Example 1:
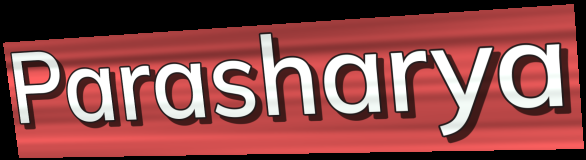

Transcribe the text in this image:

Parasharya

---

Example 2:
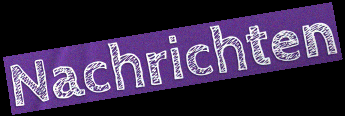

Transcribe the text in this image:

Nachrichten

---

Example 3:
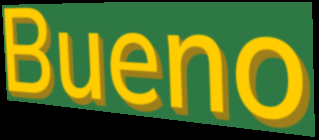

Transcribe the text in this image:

Bueno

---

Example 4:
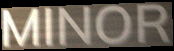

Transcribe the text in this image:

MINOR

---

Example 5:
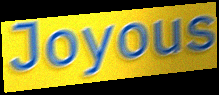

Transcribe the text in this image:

Joyous